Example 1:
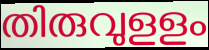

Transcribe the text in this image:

തിരുവുളളം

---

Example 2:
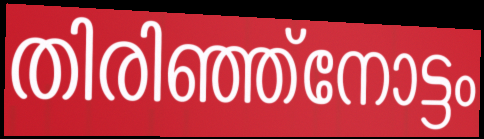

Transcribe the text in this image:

തിരിഞ്ഞ്നോട്ടം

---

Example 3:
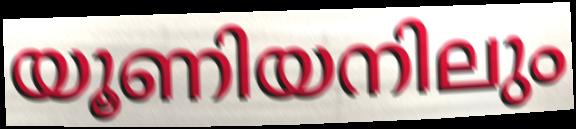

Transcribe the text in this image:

യൂണിയനിലും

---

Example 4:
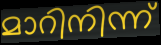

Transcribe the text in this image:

മാറിനിന്ന്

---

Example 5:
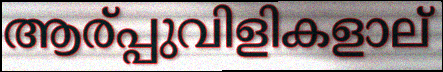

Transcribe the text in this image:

ആര്പ്പുവിളികളാല്